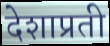
देशाप्रती